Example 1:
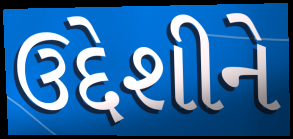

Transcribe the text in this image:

ઉદ્દેશીને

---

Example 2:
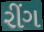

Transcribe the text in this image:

રીંગ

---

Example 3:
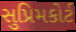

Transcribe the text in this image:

સુપ્રિમકોર્ટ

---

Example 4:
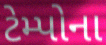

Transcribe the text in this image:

ટેમ્પોના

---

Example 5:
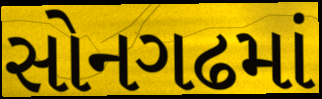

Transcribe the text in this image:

સોનગઢમાં